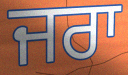
ਜਰਾ